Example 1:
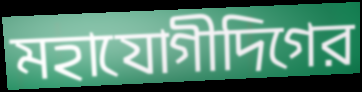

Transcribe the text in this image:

মহাযোগীদিগের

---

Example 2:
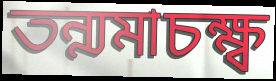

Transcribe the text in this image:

তন্মমাচক্ষ্ব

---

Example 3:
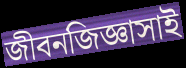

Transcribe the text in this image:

জীবনজিজ্ঞাসাই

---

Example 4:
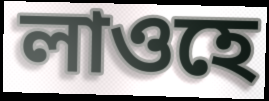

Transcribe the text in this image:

লাওহে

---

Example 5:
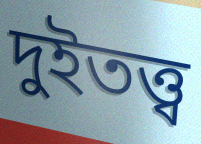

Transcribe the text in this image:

দুইতত্ত্ব